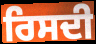
ਰਿਸਦੀ